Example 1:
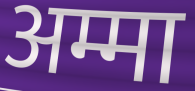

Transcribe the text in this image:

अम्मा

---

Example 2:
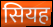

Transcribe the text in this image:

सियह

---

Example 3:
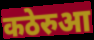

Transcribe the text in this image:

कठेरुआ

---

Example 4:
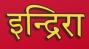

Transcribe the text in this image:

इन्द्रिरा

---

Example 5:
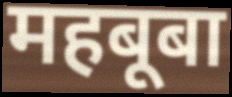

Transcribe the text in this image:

महबूबा